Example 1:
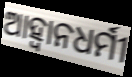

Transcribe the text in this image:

ଆହ୍ବାନଧର୍ମୀ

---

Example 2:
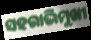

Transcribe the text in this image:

ସହରାଭିମୁଖୀ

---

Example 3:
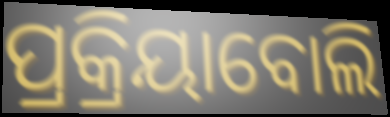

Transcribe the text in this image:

ପ୍ରକ୍ରିୟାବୋଲି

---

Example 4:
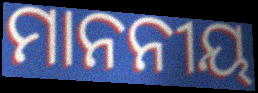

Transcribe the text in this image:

ମାନନୀୟ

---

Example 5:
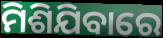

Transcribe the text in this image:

ମିଶିଯିବାରେ